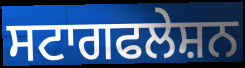
ਸਟਾਗਫਲੇਸ਼ਨ